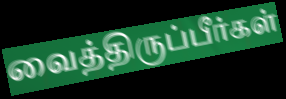
வைத்திருப்பீர்கள்